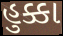
હુક્કા